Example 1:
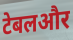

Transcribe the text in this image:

टेबलऔर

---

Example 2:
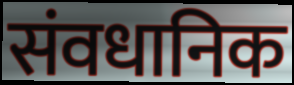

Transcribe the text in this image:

संवधानिक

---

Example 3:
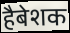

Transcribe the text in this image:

हैबेशक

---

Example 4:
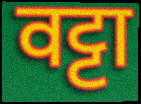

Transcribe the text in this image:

वट्टा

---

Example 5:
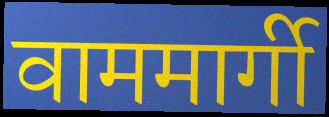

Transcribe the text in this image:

वाममार्गी